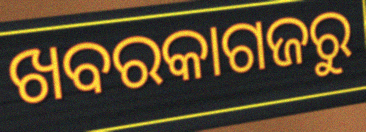
ଖବରକାଗଜରୁ